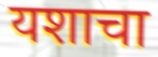
यशाचा